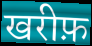
खरीफ़